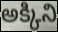
అక్కిని